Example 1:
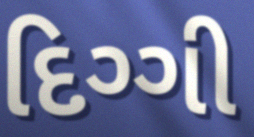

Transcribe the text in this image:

દિગ્ગી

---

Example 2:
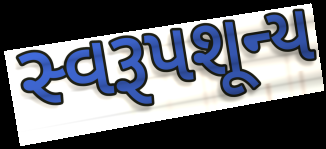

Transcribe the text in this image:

સ્વરૂપશૂન્ય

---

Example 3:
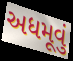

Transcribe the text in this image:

અધમૂવું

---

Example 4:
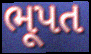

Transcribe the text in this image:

ભૂપત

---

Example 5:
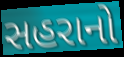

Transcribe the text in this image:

સહરાનો